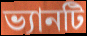
ভ্যানটি